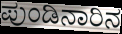
ಪುಂಡಿನಾರಿನ